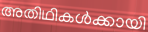
അതിഥികൾക്കായി